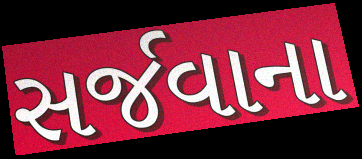
સર્જવાના